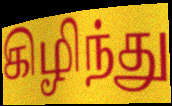
கிழிந்து